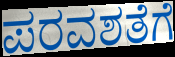
ಪರವಶತೆಗೆ